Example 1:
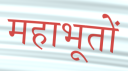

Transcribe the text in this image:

महाभूतों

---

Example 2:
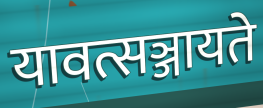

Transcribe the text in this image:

यावत्सञ्जायते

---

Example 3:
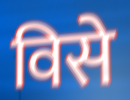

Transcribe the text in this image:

विसे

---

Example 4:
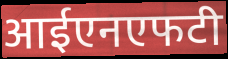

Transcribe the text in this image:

आईएनएफटी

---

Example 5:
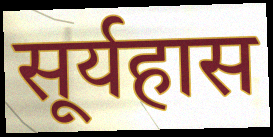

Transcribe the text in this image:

सूर्यहास